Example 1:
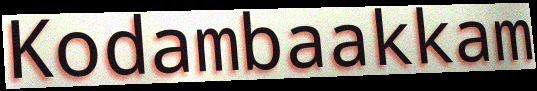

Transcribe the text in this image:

Kodambaakkam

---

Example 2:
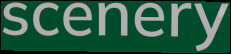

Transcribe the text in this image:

scenery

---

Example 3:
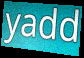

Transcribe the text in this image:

yadd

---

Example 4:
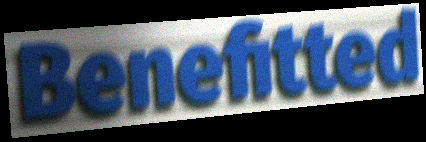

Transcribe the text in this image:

Benefitted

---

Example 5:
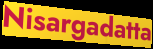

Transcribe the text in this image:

Nisargadatta